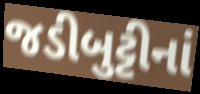
જડીબુટ્ટીનાં